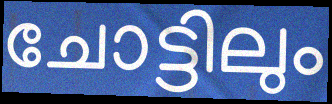
ചോട്ടിലും